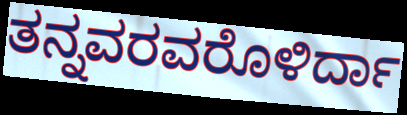
ತನ್ನವರವರೊಳಿರ್ದಾ